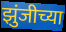
झुंजीच्या